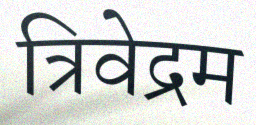
त्रिवेद्रम